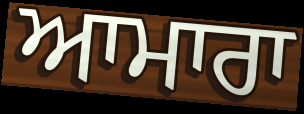
ਆਮਾਰਾ